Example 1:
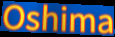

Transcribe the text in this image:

Oshima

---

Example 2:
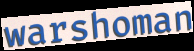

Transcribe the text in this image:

warshoman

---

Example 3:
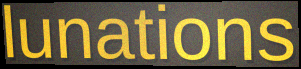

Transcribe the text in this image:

lunations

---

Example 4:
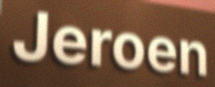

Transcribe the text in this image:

Jeroen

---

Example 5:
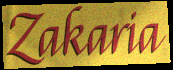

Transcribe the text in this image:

Zakaria